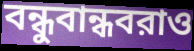
বন্ধুবান্ধবরাও